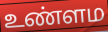
உண்ளம